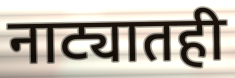
नाट्यातही